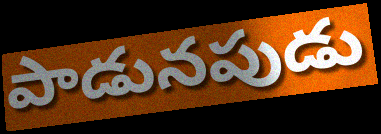
పాడునపుడు